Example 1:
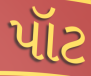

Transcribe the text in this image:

પૉટ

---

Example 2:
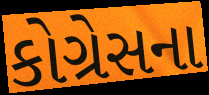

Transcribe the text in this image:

કોગ્રેસના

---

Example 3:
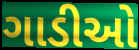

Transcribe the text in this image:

ગાડીઓ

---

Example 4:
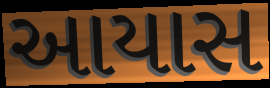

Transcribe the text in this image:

આયાસ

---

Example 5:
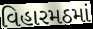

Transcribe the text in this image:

વિહારમઠમાં